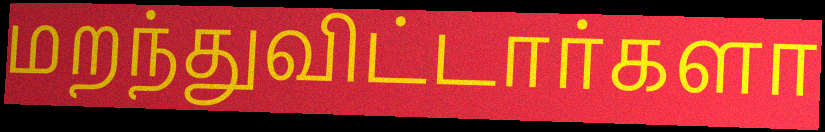
மறந்துவிட்டார்களா